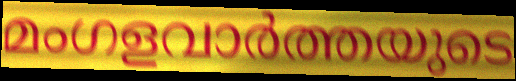
മംഗളവാർത്തയുടെ